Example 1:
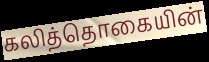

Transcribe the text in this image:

கலித்தொகையின்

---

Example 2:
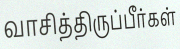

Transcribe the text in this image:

வாசித்திருப்பீர்கள்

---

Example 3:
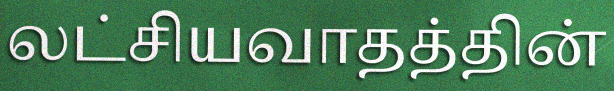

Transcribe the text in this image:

லட்சியவாதத்தின்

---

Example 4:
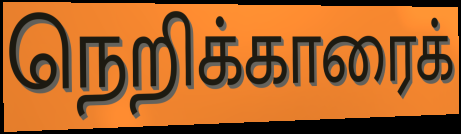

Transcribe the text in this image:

நெறிக்காரைக்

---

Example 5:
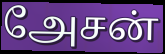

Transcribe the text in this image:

அேசன்